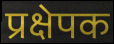
प्रक्षेपक